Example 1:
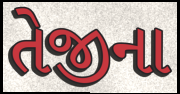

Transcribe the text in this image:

તેજીના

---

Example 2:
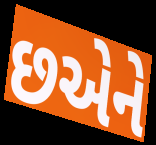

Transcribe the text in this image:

છએને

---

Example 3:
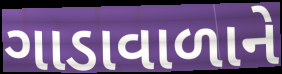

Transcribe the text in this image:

ગાડાવાળાને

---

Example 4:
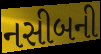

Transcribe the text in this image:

નસીબની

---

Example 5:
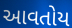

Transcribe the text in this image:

આવતોય